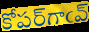
కోపర్‌గాఁవ్